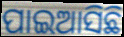
ପାଇଆସିଛି